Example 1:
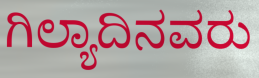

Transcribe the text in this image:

ಗಿಲ್ಯಾದಿನವರು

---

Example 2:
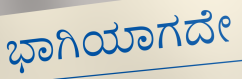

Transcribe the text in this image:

ಭಾಗಿಯಾಗದೇ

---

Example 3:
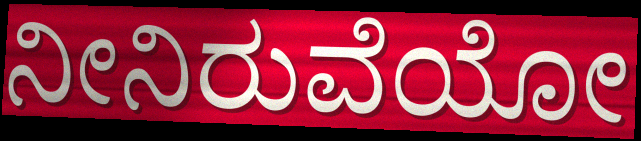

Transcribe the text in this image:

ನೀನಿರುವೆಯೋ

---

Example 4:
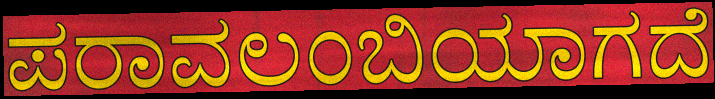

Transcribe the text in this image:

ಪರಾವಲಂಬಿಯಾಗದೆ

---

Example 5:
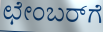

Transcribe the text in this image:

ಛೇಂಬರ್‌ಗೆ